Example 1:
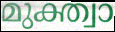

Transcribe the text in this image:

മുക്ത്വാ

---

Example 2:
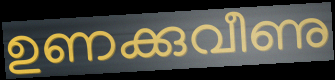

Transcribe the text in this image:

ഉണക്കുവീണു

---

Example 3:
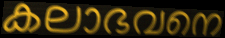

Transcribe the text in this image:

കലാഭവനെ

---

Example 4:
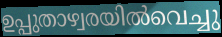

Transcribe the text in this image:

ഉപ്പുതാഴ്വരയിൽവെച്ചു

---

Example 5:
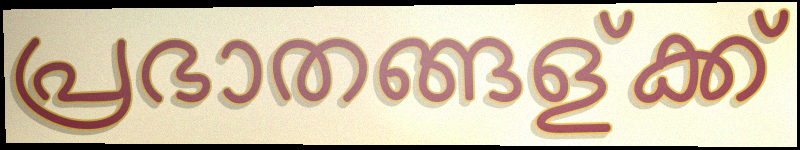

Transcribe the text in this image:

പ്രഭാതങ്ങള്ക്ക്